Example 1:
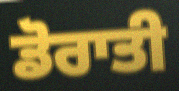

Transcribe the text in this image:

ਡੋਰਾਤੀ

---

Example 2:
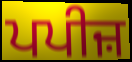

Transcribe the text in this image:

ਪਪੀਜ਼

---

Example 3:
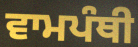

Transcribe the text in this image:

ਵਾਮਪੰਥੀ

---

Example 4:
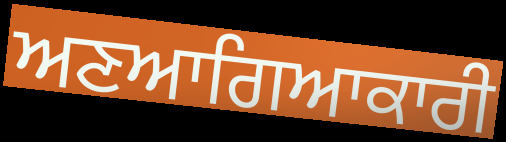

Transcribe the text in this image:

ਅਣਆਗਿਆਕਾਰੀ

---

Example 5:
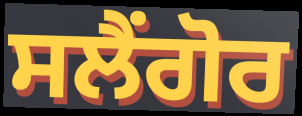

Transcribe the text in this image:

ਸਲੈਂਗੋਰ